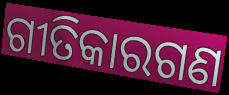
ଗୀତିକାରଗଣ